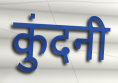
कुंदनी